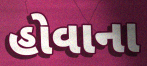
હોવાના